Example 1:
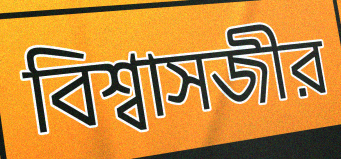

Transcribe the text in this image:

বিশ্বাসজীর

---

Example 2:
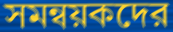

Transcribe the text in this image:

সমন্বয়কদের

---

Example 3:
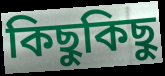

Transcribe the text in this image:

কিছুকিছু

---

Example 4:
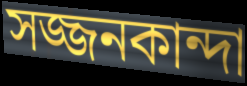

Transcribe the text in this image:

সজ্জনকান্দা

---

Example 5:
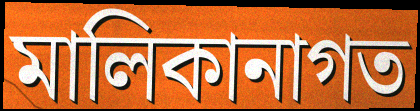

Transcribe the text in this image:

মালিকানাগত